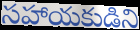
సహాయకుడిని